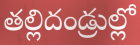
తల్లిదండ్రుల్లో